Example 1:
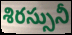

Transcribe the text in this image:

శిరస్సునీ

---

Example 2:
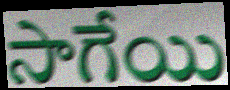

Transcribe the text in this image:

సాగేయి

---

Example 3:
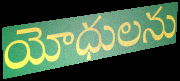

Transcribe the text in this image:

యోధులను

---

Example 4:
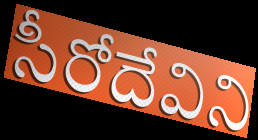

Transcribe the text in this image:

సీరోదేవిని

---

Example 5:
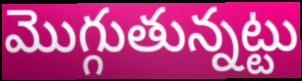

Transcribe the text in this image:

మొగ్గుతున్నట్టు